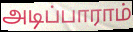
அடிப்பாராம்